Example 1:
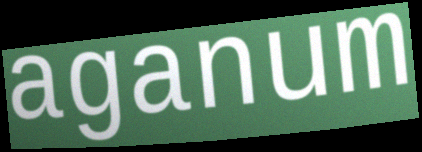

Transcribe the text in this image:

aganum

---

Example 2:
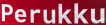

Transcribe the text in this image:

Perukku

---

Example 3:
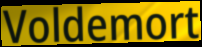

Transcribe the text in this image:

Voldemort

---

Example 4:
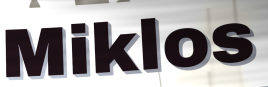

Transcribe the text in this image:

Miklos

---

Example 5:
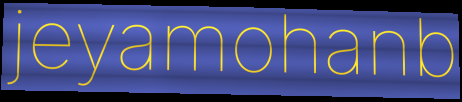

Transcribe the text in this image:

jeyamohanb